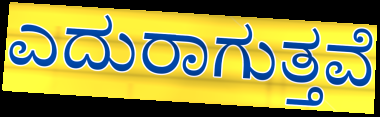
ಎದುರಾಗುತ್ತವೆ